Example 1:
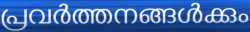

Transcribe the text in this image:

പ്രവർത്തനങ്ങൾക്കും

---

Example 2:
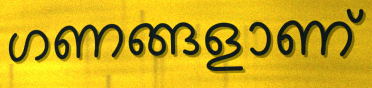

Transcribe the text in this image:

ഗണങ്ങളാണ്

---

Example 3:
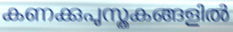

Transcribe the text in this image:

കണക്കുപുസ്തകങ്ങളിൽ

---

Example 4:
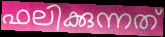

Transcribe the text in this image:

ഫലിക്കുന്നത്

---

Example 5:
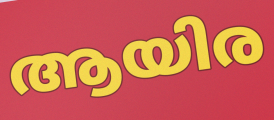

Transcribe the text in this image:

ആയിര